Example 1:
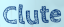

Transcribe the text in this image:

Clute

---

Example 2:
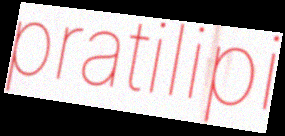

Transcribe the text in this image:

pratilipi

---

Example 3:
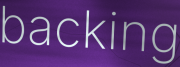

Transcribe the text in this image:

backing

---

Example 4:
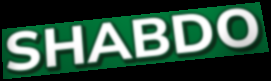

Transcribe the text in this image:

SHABDO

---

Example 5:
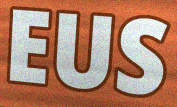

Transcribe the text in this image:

EUS